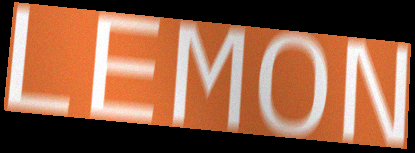
LEMON